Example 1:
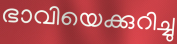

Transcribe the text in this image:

ഭാവിയെക്കുറിച്ചു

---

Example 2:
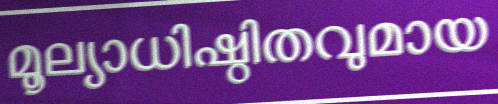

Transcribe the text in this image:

മൂല്യാധിഷ്ഠിതവുമായ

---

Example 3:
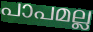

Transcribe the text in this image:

പാപമല്ല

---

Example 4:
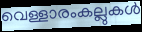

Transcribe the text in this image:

വെള്ളാരംകല്ലുകൾ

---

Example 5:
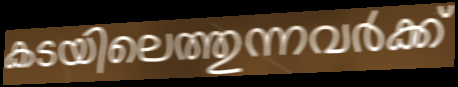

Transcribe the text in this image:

കടയിലെത്തുന്നവർക്ക്